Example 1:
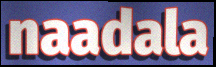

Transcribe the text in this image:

naadala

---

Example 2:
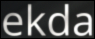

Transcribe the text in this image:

ekda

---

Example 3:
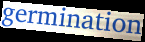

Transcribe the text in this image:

germination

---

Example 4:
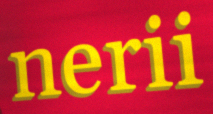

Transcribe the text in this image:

nerii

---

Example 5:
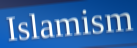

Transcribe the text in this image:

Islamism